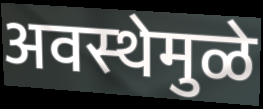
अवस्थेमुळे